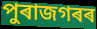
পুৰাজগৰৰ